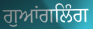
ਗੁਆਂਗਲਿੰਗ